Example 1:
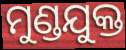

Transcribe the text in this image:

ମୁଣ୍ଡଯୁକ୍ତ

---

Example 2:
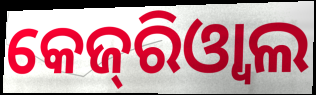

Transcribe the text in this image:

କେଜ୍‌ରିଓ୍ବାଲ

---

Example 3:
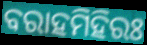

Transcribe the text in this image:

ବରାହମିହିରଃ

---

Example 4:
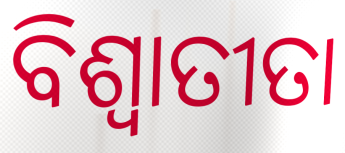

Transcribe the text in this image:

ବିଶ୍ଵାତୀତା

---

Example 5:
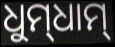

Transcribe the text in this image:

ଧୁମ୍‌ଧାମ୍